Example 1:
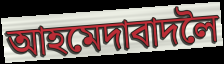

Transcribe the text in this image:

আহমেদাবাদলৈ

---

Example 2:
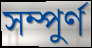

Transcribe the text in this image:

সম্পুৰ্ণ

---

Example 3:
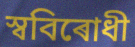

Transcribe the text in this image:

স্ববিৰোধী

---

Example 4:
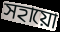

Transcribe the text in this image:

সহায়ো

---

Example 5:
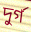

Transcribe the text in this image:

দুৰ্গ